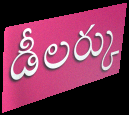
డీలర్కు